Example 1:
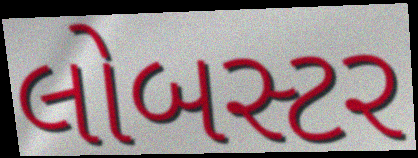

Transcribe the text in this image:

લોબસ્ટર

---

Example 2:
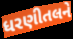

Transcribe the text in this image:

ધરણીતલને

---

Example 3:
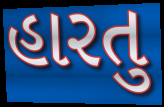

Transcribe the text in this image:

હારતુ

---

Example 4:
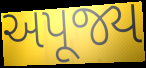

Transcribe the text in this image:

અપૂજ્ય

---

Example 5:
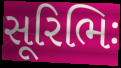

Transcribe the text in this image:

સૂરિભિઃ